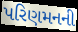
પરિણમનની